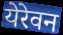
येरेवन